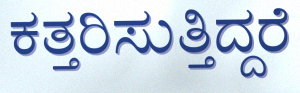
ಕತ್ತರಿಸುತ್ತಿದ್ದರೆ